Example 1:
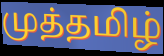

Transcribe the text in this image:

முத்தமிழ்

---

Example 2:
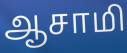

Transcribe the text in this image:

ஆசாமி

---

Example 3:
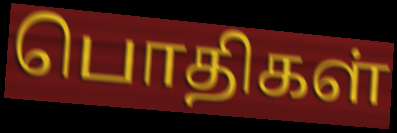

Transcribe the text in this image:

பொதிகள்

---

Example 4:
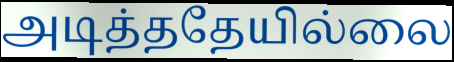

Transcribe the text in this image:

அடித்ததேயில்லை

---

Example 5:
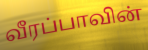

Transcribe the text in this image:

வீரப்பாவின்